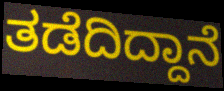
ತಡೆದಿದ್ದಾನೆ